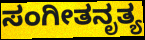
ಸಂಗೀತನೃತ್ಯ